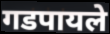
गडपायले